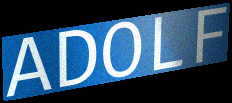
ADOLF